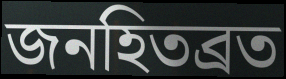
জনহিতব্রত